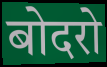
बोदरो